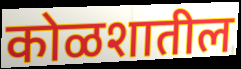
कोळशातील